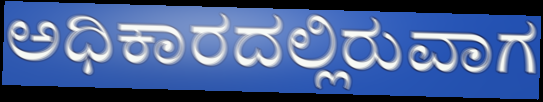
ಅಧಿಕಾರದಲ್ಲಿರುವಾಗ